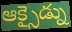
ఆక్సైడ్ను